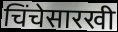
चिंचेसारखी